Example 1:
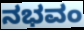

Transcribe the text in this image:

ನಭವಂ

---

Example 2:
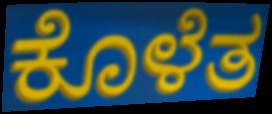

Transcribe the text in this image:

ಕೊಳೆತ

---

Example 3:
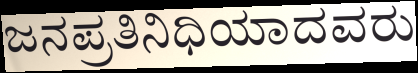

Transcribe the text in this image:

ಜನಪ್ರತಿನಿಧಿಯಾದವರು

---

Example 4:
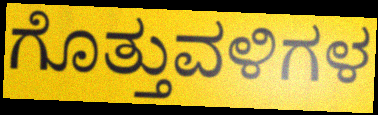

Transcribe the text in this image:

ಗೊತ್ತುವಳಿಗಳ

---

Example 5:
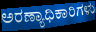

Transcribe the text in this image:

ಅರಣ್ಯಾಧಿಕಾರಿಗಳು